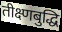
तीक्ष्णबुद्धि